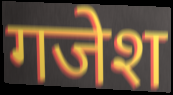
गजेश